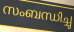
സംബന്ധിച്ചു